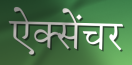
ऐक्सेंचर